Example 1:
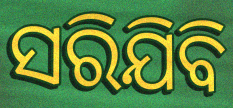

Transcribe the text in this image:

ସରିଯିବି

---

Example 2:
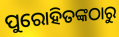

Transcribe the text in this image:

ପୁରୋହିତଙ୍କଠାରୁ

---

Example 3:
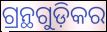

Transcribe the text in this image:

ଗ୍ରନ୍ଥଗୁଡ଼ିକର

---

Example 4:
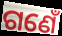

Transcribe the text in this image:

ଗଣେଁ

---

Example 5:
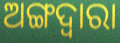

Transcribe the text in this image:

ଅଙ୍ଗଦ୍ଵାରା